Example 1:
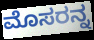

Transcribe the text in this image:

ಮೊಸರನ್ನ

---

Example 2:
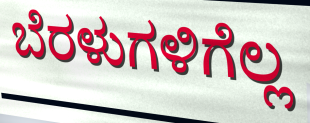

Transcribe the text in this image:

ಬೆರಳುಗಳಿಗೆಲ್ಲ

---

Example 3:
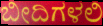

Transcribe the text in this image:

ಬೀದಿಗಳಲಿ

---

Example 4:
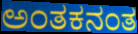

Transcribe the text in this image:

ಅಂತಕನಂತ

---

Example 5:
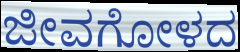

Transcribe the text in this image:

ಜೀವಗೋಳದ